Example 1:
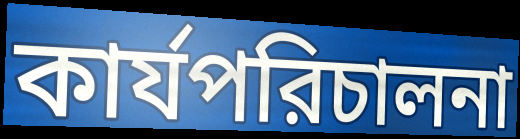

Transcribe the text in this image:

কার্যপরিচালনা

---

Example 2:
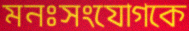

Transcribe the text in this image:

মনঃসংযোগকে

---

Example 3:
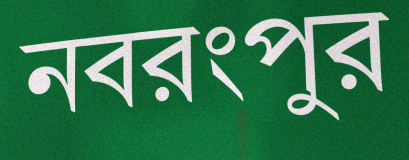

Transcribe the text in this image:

নবরংপুর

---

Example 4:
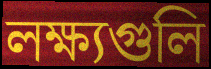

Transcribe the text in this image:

লক্ষ্যগুলি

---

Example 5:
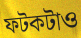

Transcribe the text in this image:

ফটকটাও